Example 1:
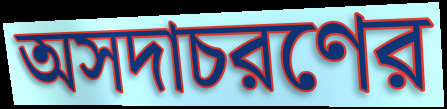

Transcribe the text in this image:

অসদাচরণের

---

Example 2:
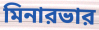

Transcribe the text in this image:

মিনারভার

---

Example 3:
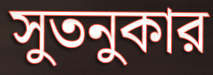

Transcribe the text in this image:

সুতনুকার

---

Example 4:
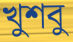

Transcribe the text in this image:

খুশবু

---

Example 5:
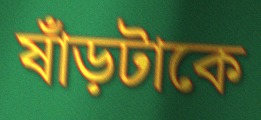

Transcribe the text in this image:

ষাঁড়টাকে